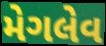
મેગલેવ